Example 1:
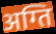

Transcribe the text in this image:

अग्ति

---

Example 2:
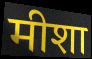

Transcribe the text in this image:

मीशा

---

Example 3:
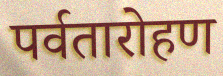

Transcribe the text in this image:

पर्वतारोहण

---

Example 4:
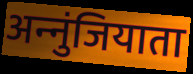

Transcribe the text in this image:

अन्नुंजियाता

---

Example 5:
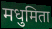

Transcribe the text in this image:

मधुमिता